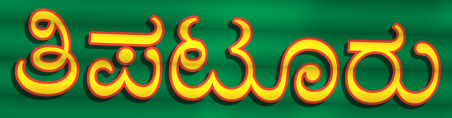
ತಿಪಟೂರು